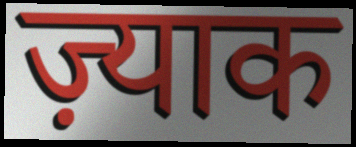
ज़्याक